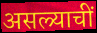
असल्याचीं